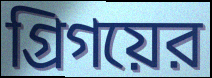
গ্রিগয়ের